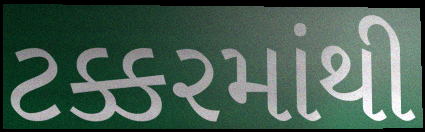
ટક્કરમાંથી